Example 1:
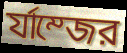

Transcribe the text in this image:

র্যাম্জের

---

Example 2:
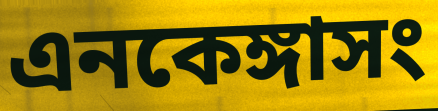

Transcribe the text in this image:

এনকেঙ্গাসং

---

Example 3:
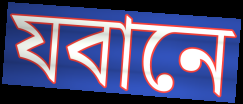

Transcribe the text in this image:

যবানে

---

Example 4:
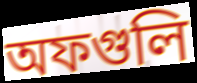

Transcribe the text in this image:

অফগুলি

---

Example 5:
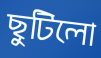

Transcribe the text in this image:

ছুটিলো